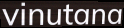
vinutana